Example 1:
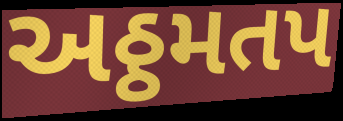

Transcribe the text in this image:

અઠ્ઠમતપ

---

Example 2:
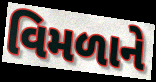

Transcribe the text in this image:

વિમળાને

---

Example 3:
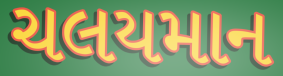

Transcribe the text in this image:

ચલયમાન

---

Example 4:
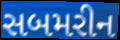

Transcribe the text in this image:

સબમરીન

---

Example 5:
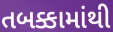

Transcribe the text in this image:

તબક્કામાંથી